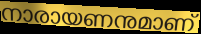
നാരായണനുമാണ്